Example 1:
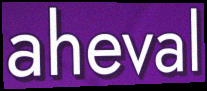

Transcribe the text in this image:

aheval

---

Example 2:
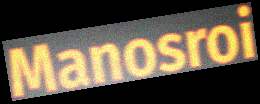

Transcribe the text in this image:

Manosroi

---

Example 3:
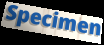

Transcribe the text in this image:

Specimen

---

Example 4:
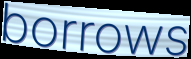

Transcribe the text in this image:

borrows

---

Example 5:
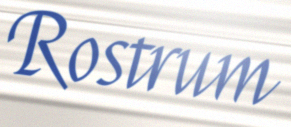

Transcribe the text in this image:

Rostrum